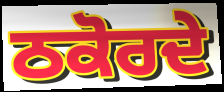
ਠਕੋਰਦੇ